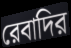
রেবাদির